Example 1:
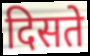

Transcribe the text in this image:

दिसते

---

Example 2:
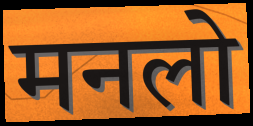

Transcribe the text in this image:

मनलो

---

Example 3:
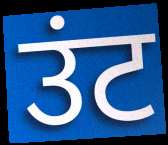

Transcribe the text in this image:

उंट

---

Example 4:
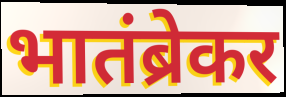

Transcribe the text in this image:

भातंब्रेकर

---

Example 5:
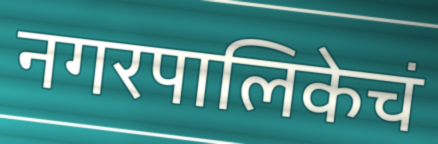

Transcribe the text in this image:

नगरपालिकेचं